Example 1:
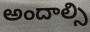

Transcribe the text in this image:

అందాల్సి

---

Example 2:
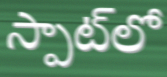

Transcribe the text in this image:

స్పాట్‌లో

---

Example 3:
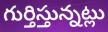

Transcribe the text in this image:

గుర్తిస్తున్నట్లు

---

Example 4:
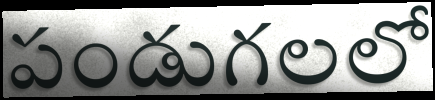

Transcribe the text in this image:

పండుగలలో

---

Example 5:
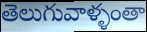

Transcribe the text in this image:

తెలుగువాళ్ళంతా